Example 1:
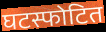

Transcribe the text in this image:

घटस्फोटित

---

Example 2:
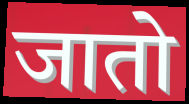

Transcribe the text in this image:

जातो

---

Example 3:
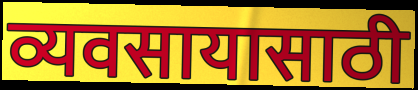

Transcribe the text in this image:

व्यवसायासाठी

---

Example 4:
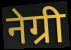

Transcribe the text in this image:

नेग्री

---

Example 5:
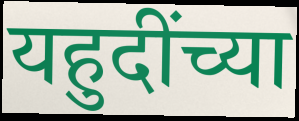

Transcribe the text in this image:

यहुदींच्या